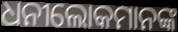
ଧନୀଲୋକମାନଙ୍କ